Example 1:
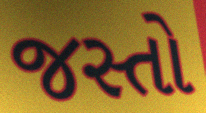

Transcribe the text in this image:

જસ્તો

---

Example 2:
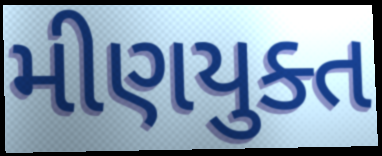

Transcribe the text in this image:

મીણયુક્ત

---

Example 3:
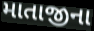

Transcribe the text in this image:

માતાજીના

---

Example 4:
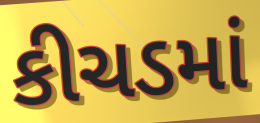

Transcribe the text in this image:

કીચડમાં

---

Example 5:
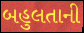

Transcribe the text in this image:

બહુલતાની